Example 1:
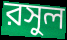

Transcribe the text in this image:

রসুল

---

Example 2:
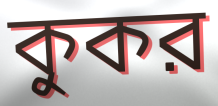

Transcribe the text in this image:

কুকর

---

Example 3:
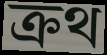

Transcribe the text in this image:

ক্রথ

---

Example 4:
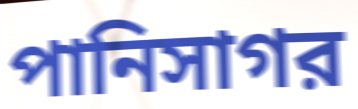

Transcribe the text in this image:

পানিসাগর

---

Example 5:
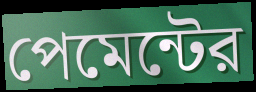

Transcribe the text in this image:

পেমেন্টের